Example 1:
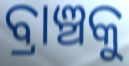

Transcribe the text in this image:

ବ୍ରାଞ୍ଚକୁ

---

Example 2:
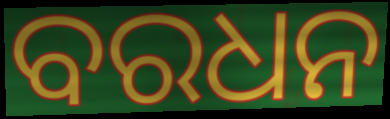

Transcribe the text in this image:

ବରଧନ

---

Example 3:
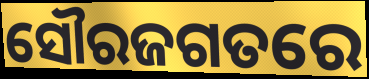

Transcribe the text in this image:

ସୌରଜଗତରେ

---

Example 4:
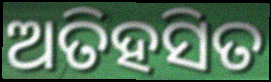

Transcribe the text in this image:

ଅତିହସିତ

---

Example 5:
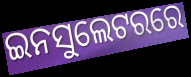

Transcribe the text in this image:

ଇନସୁଲେଟରରେ